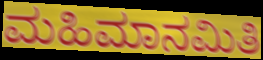
ಮಹಿಮಾನಮಿತಿ